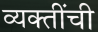
व्‍यक्‍तींची